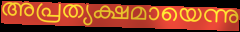
അപ്രത്യക്ഷമായെന്നു